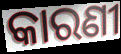
କାରଣୀ